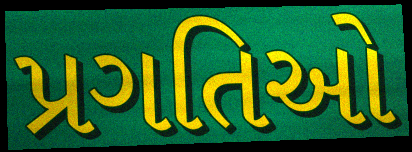
પ્રગતિઓ